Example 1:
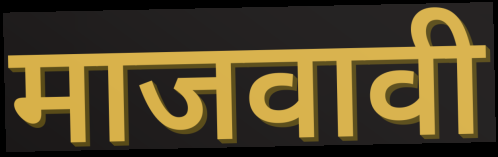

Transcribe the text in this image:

माजवावी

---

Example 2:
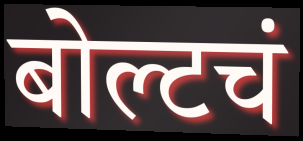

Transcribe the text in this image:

बोल्टचं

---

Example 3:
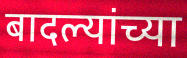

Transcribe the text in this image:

बादल्यांच्या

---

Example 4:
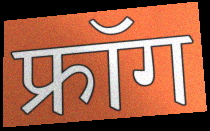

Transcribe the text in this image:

फ्रॉग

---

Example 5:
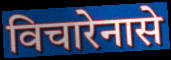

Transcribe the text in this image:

विचारेनासे